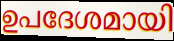
ഉപദേശമായി